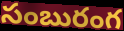
సంబురంగ